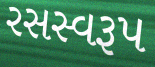
રસસ્વરૂપ